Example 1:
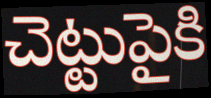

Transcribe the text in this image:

చెట్టుపైకి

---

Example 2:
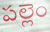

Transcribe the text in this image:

పల్లెం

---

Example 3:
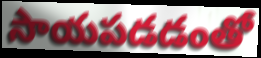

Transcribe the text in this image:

సాయపడడంతో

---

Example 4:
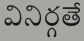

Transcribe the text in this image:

వినిర్గతే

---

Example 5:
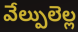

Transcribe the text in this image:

వేల్పులెల్ల